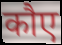
कौए